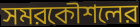
সমরকৌশলের